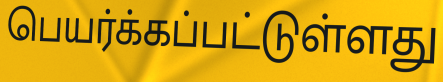
பெயர்க்கப்பட்டுள்ளது